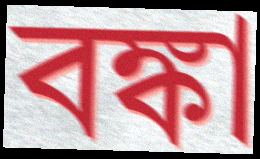
বঙ্কা